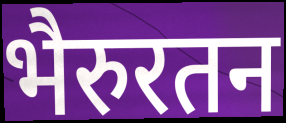
भैरुरतन